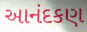
આનંદકણ